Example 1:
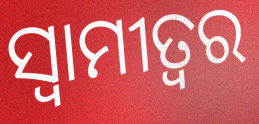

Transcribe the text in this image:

ସ୍ୱାମୀତ୍ୱର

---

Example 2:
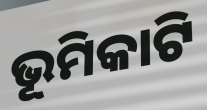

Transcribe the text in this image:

ଭୂମିକାଟି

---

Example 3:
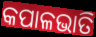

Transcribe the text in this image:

କପାଳଭାତି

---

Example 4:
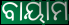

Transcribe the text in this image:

ବାୟାମ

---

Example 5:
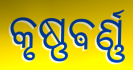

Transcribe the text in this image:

କୃଷ୍ଣଵର୍ଣ୍ଣ